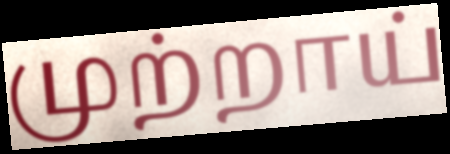
முற்றாய்